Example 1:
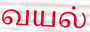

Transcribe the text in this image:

வயல்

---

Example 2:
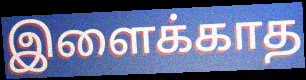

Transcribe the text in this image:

இளைக்காத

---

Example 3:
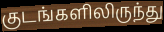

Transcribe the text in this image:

குடங்களிலிருந்து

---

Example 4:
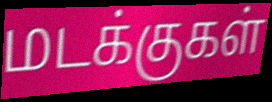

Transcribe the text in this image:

மடக்குகள்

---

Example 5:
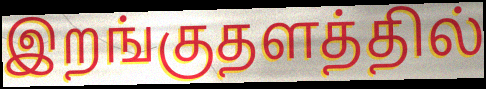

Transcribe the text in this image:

இறங்குதளத்தில்